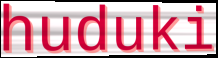
huduki